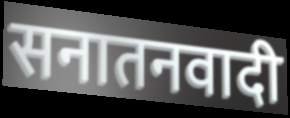
सनातनवादी